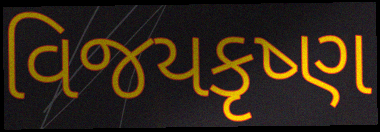
વિજયકૃષ્ણ